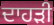
ਦਾਹੜੀ